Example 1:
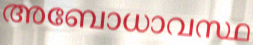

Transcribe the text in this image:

അബോധാവസ്ഥ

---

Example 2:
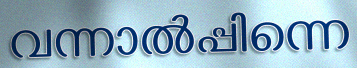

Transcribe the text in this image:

വന്നാൽപ്പിന്നെ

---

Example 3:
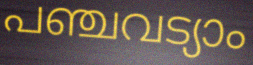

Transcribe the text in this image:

പഞ്ചവട്യാം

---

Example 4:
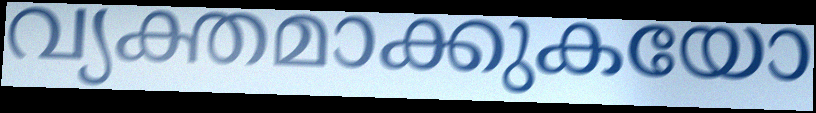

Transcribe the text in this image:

വ്യക്തമാക്കുകയോ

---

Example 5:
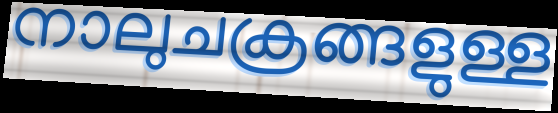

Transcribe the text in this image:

നാലുചക്രങ്ങളുള്ള